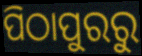
ପିଠାପୁରରୁ